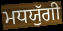
ਮਧਯੁੱਗੀ